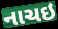
નાચઇ